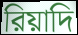
রিয়াদি